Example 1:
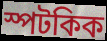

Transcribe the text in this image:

স্পটকিক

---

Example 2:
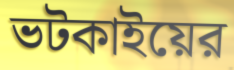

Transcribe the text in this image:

ভটকাইয়ের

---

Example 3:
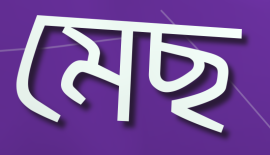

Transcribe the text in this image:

মেছ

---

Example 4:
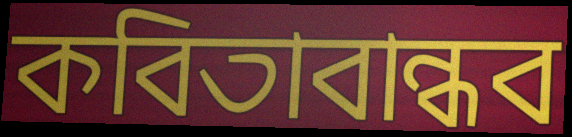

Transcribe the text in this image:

কবিতাবান্ধব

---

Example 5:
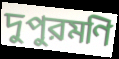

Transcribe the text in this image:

দুপুরমণি